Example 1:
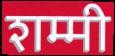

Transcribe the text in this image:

शम्मी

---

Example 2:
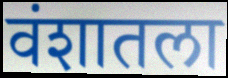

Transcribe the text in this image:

वंशातला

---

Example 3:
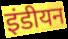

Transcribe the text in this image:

इंडीयन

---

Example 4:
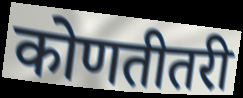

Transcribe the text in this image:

कोणतीतरी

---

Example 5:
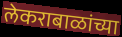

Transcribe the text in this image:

लेकराबाळांच्या